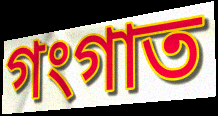
গংগাত